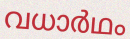
വധാർഥം